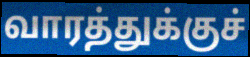
வாரத்துக்குச்